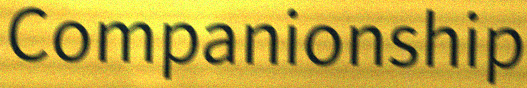
Companionship